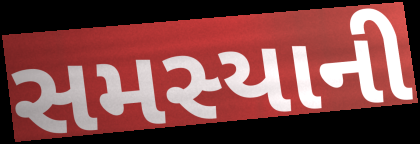
સમસ્યાની